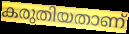
കരുതിയതാണ്